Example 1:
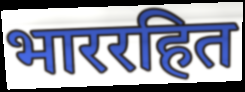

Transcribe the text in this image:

भाररहित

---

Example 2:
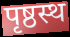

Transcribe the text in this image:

पृष्ठस्थ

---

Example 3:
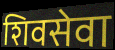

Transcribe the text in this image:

शिवसेवा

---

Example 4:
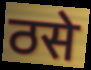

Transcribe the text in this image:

ठसे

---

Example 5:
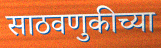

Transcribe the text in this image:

साठवणुकीच्या